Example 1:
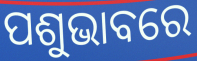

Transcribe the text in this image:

ପଶୁଭାବରେ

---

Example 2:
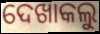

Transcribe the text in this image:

ଦେଖାକଲୁ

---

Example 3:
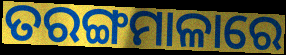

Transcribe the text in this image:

ତରଙ୍ଗମାଳାରେ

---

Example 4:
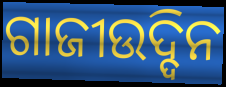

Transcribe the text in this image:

ଗାଜୀଉଦ୍ଦିନ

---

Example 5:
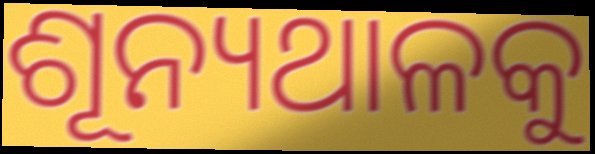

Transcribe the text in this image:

ଶୂନ୍ୟଥାଳକୁ